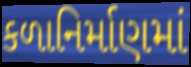
કળાનિર્માણમાં